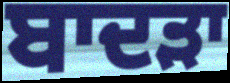
ਬਾਦੜਾ